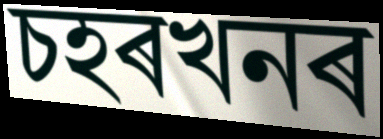
চহৰখনৰ